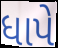
ધાપે